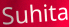
Suhita